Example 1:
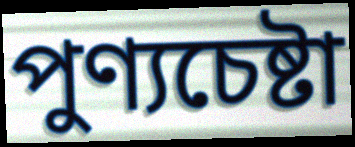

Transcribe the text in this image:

পুণ্যচেষ্টা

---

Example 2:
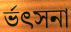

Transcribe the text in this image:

র্ভৎসনা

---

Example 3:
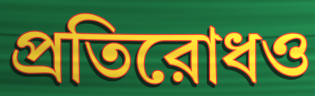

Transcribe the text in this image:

প্রতিরোধও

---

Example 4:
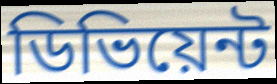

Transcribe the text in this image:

ডিভিয়েন্ট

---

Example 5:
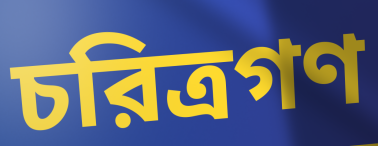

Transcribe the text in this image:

চরিত্রগণ